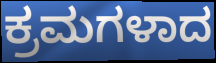
ಕ್ರಮಗಳಾದ